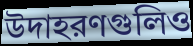
উদাহরণগুলিও